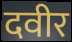
दवीर